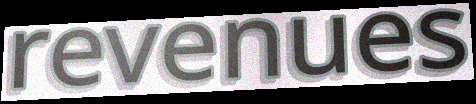
revenues